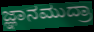
ಜ್ಞಾನಮುದ್ರಾ